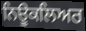
ਨਿਊਕਲਿਅਰ